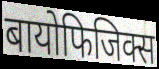
बायोफिजिक्स